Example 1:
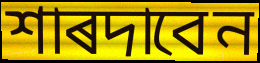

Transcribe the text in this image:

শাৰদাবেন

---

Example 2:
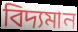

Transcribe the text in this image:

বিদ্যমান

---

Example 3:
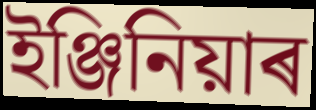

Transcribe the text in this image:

ইঞ্জিনিয়াৰ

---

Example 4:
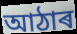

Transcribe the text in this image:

আঠাৰ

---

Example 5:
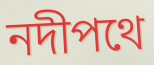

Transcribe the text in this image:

নদীপথে